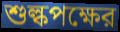
শুল্কপক্ষের